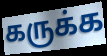
கருக்க